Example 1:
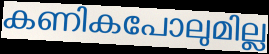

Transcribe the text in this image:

കണികപോലുമില്ല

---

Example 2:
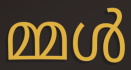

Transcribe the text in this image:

മ്മൾ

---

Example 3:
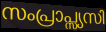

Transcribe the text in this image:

സംപ്രാപ്സ്യസി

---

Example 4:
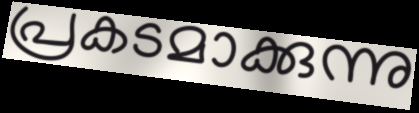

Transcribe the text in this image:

പ്രകടമാക്കുന്നു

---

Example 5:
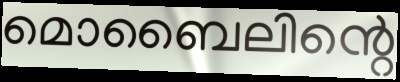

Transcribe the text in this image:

മൊബൈലിന്റെ